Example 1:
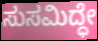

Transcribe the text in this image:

ಸುಸಮಿದ್ಧೇ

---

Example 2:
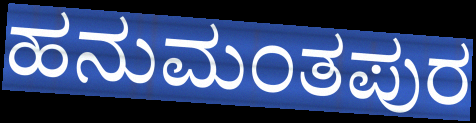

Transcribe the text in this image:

ಹನುಮಂತಪುರ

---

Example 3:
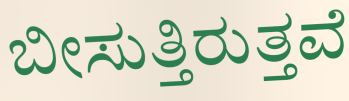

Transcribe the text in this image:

ಬೀಸುತ್ತಿರುತ್ತವೆ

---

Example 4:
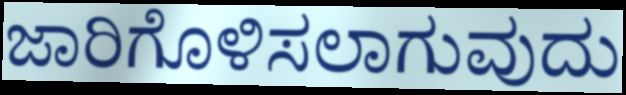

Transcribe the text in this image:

ಜಾರಿಗೊಳಿಸಲಾಗುವುದು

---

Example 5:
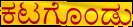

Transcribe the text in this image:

ಕಟಗೊಂಡು